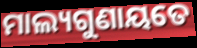
ମାଲ୍ୟଗୁଣାୟତେ